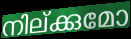
നില്ക്കുമോ